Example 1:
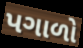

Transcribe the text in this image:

પગાળો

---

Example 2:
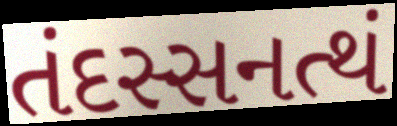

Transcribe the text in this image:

તંદસ્સનત્થં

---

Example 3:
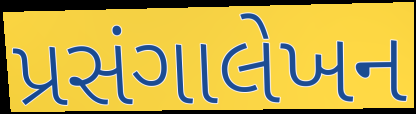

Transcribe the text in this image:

પ્રસંગાલેખન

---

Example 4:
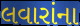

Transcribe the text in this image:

લવારાંના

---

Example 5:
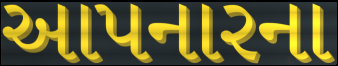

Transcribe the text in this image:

આપનારના